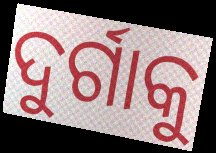
ଦୁର୍ଗାକୁ